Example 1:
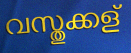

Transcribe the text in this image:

വസ്തുക്കള്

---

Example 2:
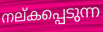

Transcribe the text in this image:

നല്കപ്പെടുന്ന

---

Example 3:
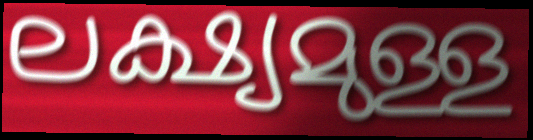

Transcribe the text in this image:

ലക്ഷ്യമുള്ള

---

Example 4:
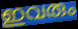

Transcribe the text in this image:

ഇവരും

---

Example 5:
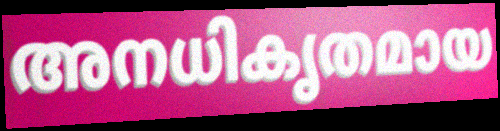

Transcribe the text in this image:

അനധികൃതമായ